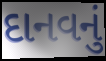
દાનવનું